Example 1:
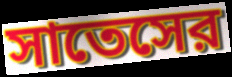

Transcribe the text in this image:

সাতেসের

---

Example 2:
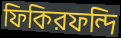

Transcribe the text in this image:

ফিকিরফন্দি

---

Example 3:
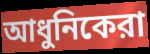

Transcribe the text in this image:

আধুনিকেরা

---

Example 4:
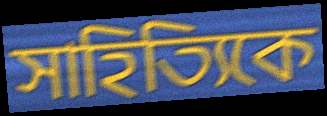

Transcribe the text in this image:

সাহিত্যিকে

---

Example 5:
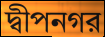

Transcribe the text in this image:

দ্বীপনগর